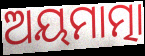
ଅୟମାତ୍ମା